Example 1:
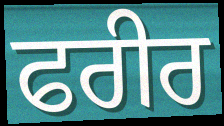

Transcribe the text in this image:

ਫਰੀਰ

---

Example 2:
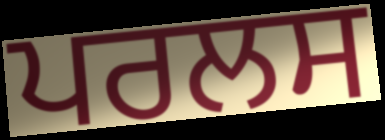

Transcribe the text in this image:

ਪਰਲਸ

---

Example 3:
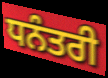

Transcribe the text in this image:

ਧਨੰਤਰੀ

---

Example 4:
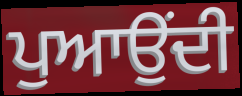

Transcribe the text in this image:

ਪੁਆਉਂਦੀ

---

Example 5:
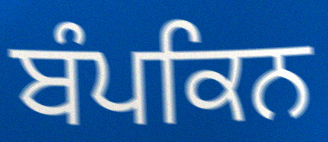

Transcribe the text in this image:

ਬੰਪਕਿਨ